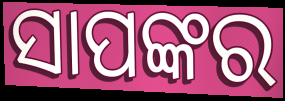
ସାପଙ୍କର